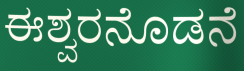
ಈಶ್ವರನೊಡನೆ